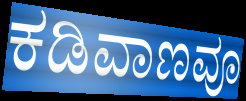
ಕಡಿವಾಣವೂ